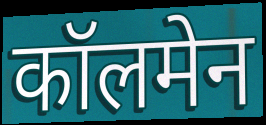
कॉलमेन